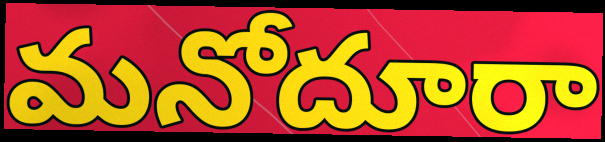
మనోదూరా